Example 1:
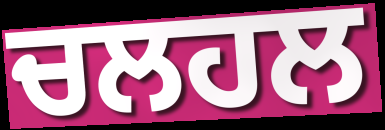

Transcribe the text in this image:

ਚਲਹਲ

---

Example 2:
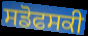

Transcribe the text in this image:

ਸਡੋਫਸਕੀ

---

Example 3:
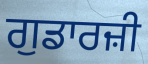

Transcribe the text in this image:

ਗੁਡਾਰਜ਼ੀ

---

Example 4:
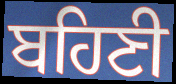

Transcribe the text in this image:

ਬਹਿਣੀ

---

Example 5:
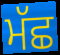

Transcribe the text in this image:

ਮੱਛ